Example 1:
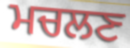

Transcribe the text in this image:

ਮਚਲਣ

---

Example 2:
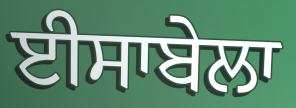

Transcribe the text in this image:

ਈਸਾਬੇਲਾ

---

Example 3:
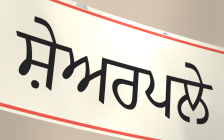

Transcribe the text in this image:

ਸ਼ੇਅਰਪਲੇ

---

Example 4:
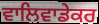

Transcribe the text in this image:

ਵਾਲਿਵਾਡੇਕਰ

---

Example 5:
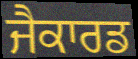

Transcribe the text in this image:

ਜੈਕਾਰਡ